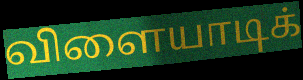
விளையாடிக்